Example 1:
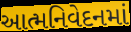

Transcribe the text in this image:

આત્મનિવેદનમાં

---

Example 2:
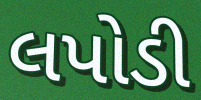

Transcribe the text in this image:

લપોડી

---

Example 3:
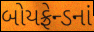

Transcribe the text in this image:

બોયફ્રેન્ડનાં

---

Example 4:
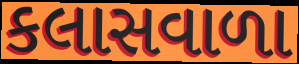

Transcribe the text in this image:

કલાસવાળા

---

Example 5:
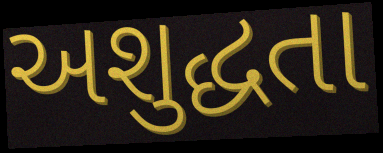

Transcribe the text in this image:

અશુદ્ધતા